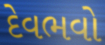
દેવભવો